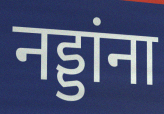
नड्डांना